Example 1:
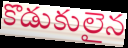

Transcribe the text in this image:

కొడుకులైన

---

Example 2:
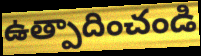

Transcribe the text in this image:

ఉత్పాదించండి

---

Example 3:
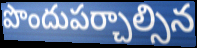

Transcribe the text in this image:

పొందుపర్చాల్సిన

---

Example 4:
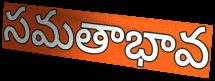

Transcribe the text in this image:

సమతాభావ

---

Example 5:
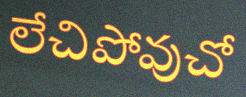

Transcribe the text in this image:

లేచిపోవుచో